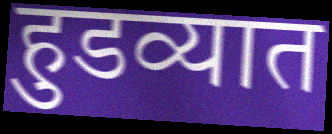
हुडव्यात